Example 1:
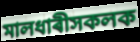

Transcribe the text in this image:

মালধাৰীসকলক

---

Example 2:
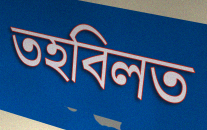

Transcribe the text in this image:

তহবিলত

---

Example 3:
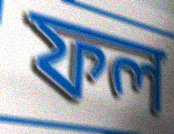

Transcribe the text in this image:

ফল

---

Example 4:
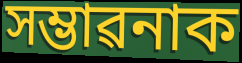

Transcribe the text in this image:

সম্ভাৱনাক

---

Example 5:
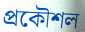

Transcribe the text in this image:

প্ৰকৌশল